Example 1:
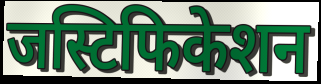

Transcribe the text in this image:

जस्टिफिकेशन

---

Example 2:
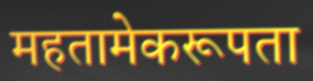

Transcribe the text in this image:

महतामेकरूपता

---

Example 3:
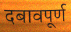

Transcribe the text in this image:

दबावपूर्ण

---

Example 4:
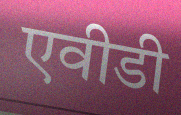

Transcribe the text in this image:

एवीडी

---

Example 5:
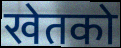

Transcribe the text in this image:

खेतको